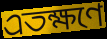
এতক্ষণে